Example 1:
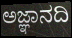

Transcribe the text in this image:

ಅಜ್ಞಾನದಿ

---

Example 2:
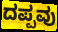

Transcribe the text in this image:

ದಪ್ಪವು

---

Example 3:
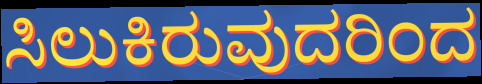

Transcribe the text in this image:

ಸಿಲುಕಿರುವುದರಿಂದ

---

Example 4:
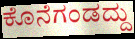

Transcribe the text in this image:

ಕೊನೆಗಂಡದ್ದು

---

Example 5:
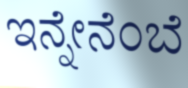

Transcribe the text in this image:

ಇನ್ನೇನೆಂಬೆ